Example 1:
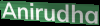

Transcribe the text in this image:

Anirudha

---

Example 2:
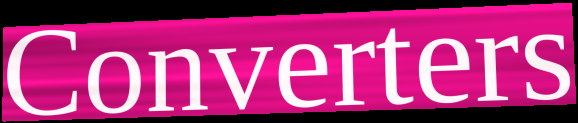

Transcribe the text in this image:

Converters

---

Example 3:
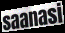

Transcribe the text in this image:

saanasi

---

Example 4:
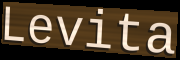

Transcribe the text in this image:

Levita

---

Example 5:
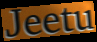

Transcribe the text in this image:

Jeetu